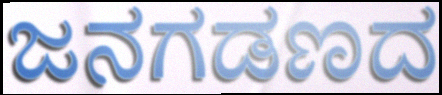
ಜನಗಡಣದ